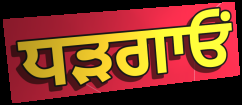
ਧੜਗਾਓਂ